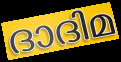
ദാദിമ